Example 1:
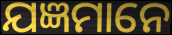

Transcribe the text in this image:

ଯଜ୍ଞମାନେ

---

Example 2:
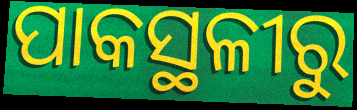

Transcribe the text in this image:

ପାକସ୍ଥଳୀରୁ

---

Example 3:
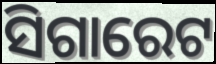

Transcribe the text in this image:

ସିଗାରେଟ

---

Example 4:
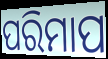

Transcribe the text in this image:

ପରିମାପ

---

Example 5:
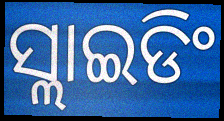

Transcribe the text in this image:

ସ୍ଲାଇଡିଂ